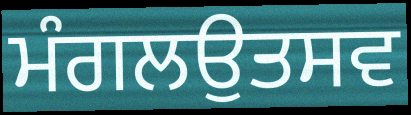
ਮੰਗਲਉਤਸਵ